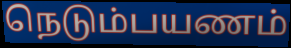
நெடும்பயணம்